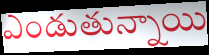
ఎండుతున్నాయి